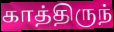
காத்திருந்